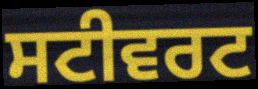
ਸਟੀਵਰਟ